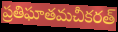
ప్రతిఘాతమచీకరత్